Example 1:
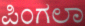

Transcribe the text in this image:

ಪಿಂಗಲಾ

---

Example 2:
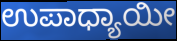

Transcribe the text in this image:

ಉಪಾಧ್ಯಾಯೀ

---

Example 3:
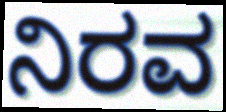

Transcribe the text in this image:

ನಿರವ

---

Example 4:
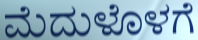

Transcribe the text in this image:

ಮೆದುಳೊಳಗೆ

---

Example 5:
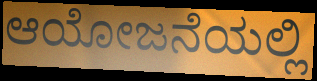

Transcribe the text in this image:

ಆಯೋಜನೆಯಲ್ಲಿ